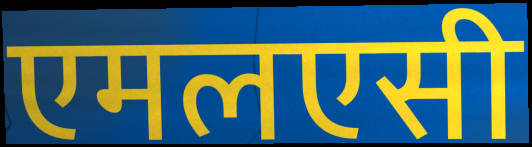
एमलएसी